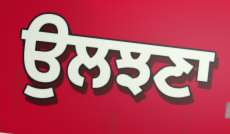
ਉਲਝਣਾ